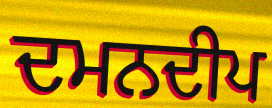
ਦਮਨਦੀਪ